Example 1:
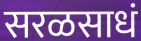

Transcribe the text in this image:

सरळसाधं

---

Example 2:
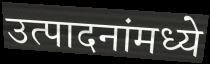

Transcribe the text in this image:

उत्पादनांमध्ये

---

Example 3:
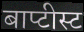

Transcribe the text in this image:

बाप्टीस्ट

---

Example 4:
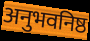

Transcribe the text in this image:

अनुभवनिष्ठ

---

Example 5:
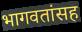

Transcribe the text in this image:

भागवतांसह